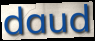
daud